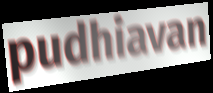
pudhiavan